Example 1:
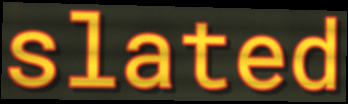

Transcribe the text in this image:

slated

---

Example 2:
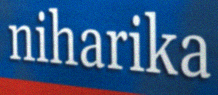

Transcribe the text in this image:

niharika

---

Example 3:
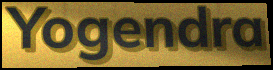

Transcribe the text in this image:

Yogendra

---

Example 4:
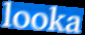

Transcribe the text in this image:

looka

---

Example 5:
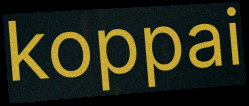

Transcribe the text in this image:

koppai